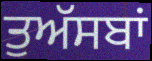
ਤੁਅੱਸਬਾਂ